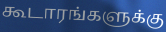
கூடாரங்களுக்கு